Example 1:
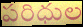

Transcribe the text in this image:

పరిధుల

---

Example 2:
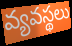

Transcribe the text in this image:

వ్యవస్థలు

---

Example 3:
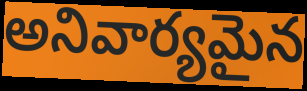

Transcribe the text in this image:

అనివార్యమైన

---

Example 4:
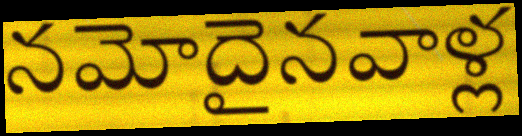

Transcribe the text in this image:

నమోదైనవాళ్ల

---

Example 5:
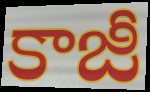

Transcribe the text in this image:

కాజీ